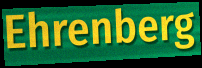
Ehrenberg